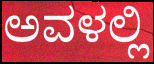
ಅವಳಲ್ಲಿ